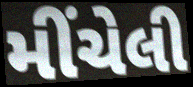
મીંચેલી